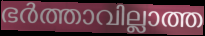
ഭർത്താവില്ലാത്ത